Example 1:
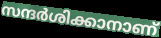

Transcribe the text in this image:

സന്ദർശിക്കാനാണ്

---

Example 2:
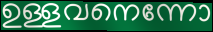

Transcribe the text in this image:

ഉള്ളവനെന്നോ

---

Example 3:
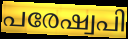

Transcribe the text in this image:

പരേഷ്വപി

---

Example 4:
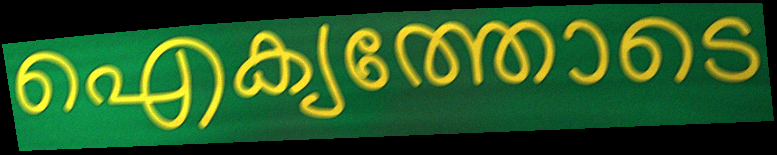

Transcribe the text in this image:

ഐക്യത്തോടെ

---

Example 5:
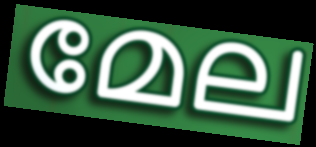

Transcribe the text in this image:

മേല